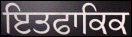
ਇਤਫਾਕਿਕ